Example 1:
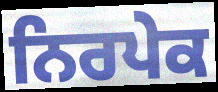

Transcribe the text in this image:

ਨਿਰਪੇਕ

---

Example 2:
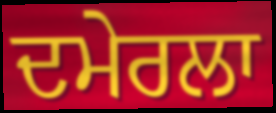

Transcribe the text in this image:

ਦਮੇਰਲਾ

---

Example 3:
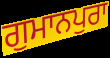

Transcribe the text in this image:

ਗੁਮਾਨਪੁਰਾ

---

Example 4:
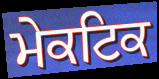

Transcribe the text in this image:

ਮੇਕਟਿਕ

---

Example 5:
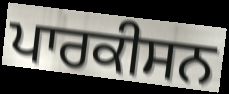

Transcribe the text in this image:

ਪਾਰਕੀਸਨ